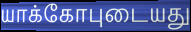
யாக்கோபுடையது